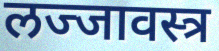
लज्जावस्त्र